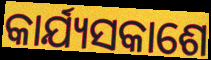
କାର୍ଯ୍ୟସକାଶେ